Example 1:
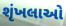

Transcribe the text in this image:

શૃંખલાઓ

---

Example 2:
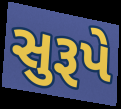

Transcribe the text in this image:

સુરૂપે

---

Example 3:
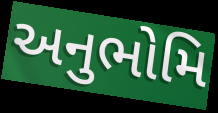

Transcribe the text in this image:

અનુભોમિ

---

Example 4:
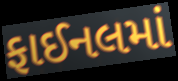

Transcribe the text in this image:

ફાઈનલમાં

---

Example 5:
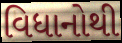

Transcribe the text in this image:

વિધાનોથી